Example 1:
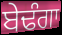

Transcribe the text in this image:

ਬੇਢੰਗਾ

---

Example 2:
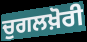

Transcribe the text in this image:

ਚੁਗਲਖ਼ੋਰੀ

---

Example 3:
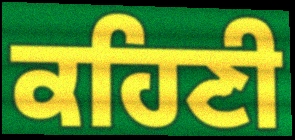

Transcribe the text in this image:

ਕਹਿਣੀ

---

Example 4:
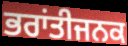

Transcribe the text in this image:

ਭਰਾਂਤੀਜਨਕ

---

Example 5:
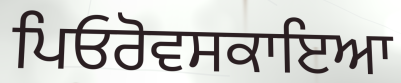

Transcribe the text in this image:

ਪਿਓਰੋਵਸਕਾਇਆ